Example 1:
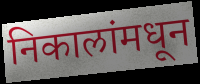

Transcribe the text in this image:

निकालांमधून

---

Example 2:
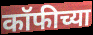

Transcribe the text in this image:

कॉफीच्या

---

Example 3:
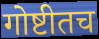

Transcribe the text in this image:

गोष्टीतच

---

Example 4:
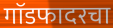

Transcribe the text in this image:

गॉडफादरचा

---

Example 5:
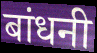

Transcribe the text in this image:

बांधनी